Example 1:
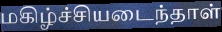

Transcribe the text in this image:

மகிழ்ச்சியடைந்தாள்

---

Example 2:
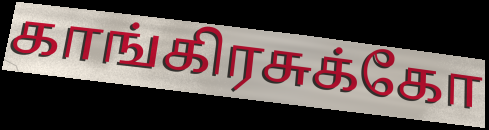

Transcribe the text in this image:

காங்கிரசுக்கோ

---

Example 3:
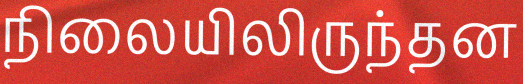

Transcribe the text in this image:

நிலையிலிருந்தன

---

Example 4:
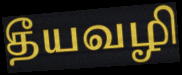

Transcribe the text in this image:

தீயவழி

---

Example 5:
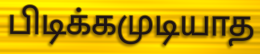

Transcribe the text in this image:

பிடிக்கமுடியாத